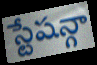
స్టేషన్గా